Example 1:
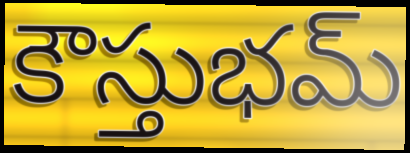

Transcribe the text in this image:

కౌస్తుభమ్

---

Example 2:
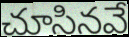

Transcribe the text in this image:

చూసినవే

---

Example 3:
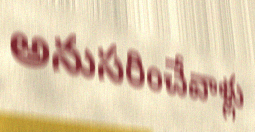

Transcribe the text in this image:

అనుసరించేవాళ్లు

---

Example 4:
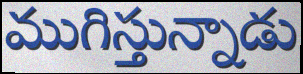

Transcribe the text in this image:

ముగిస్తున్నాడు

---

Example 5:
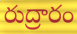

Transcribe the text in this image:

రుద్రారం